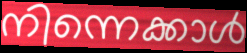
നിന്നെക്കാൾ